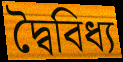
দ্বৈবিধ্য